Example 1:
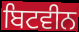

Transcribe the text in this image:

ਬਿਟਵੀਨ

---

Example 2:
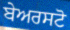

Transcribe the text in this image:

ਬੇਅਰਸਟੋ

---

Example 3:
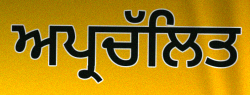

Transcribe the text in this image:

ਅਪ੍ਰਚੱਲਿਤ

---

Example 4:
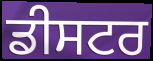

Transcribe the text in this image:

ਡੀਸਟਰ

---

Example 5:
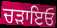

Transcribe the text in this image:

ਚੜਾਇਓ